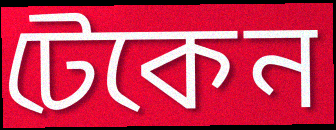
টেকেন